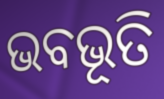
ଭବଭୂତି